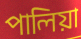
পালিয়া